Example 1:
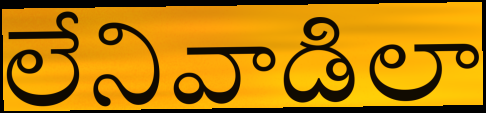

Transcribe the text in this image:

లేనివాడిలా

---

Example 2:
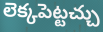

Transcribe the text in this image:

లెక్కపెట్టచ్చు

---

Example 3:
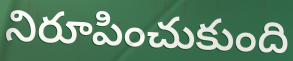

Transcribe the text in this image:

నిరూపించుకుంది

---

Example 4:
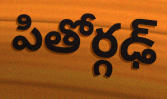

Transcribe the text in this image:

పితోర్గఢ్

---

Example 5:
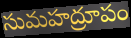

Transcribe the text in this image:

సుమహద్రూపం